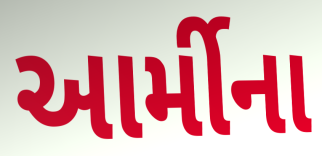
આર્મીના